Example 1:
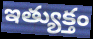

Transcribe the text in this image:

ఇత్యుక్తం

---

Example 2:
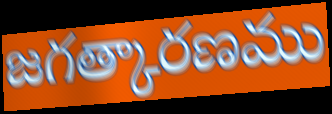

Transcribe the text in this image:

జగత్కారణము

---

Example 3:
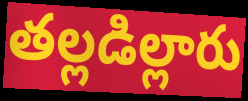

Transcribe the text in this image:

తల్లడిల్లారు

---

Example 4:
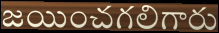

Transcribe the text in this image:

జయించగలిగారు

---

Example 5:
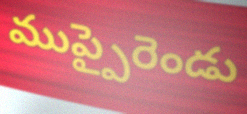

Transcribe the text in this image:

ముప్పైరెండు